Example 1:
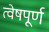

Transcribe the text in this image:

त्वेषपूर्ण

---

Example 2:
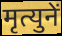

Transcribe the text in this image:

मृत्युनें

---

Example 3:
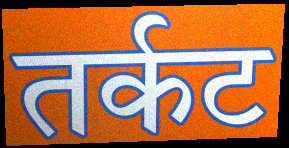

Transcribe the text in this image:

तर्कट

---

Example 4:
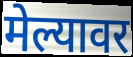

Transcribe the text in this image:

मेल्यावर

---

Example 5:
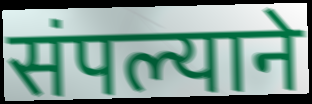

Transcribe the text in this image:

संपल्याने